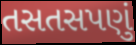
તસતસપણું